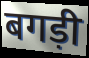
बगड़ी